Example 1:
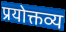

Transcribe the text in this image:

प्रयोक्तव्य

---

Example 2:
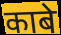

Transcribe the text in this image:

काबे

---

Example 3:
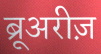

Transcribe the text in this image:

ब्रूअरीज़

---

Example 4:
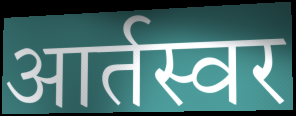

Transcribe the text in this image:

आर्तस्वर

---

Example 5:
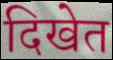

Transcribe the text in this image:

दिखेत